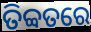
ତିବ୍ବତରେ